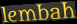
lembah